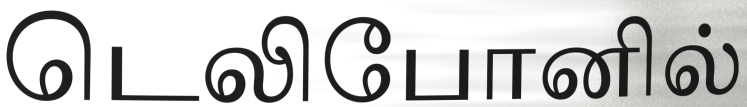
டெலிபோனில்